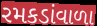
રમકડાંવાળા